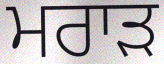
ਮਰਾੜ